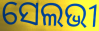
ସେଲଭୀ